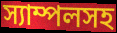
স্যাম্পলসহ